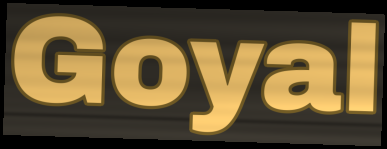
Goyal